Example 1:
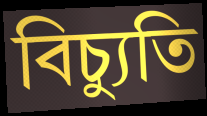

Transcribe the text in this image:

বিচ্যুতি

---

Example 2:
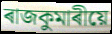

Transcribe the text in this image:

ৰাজকুমাৰীয়ে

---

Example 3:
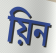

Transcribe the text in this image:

য়িন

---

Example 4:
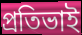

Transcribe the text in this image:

প্ৰতিভাই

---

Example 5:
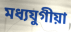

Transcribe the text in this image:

মধ্যযুগীয়া